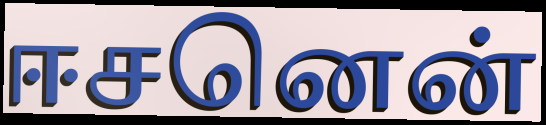
ஈசனென்